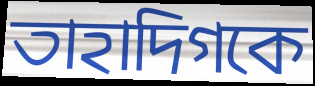
তাহাদিগকে